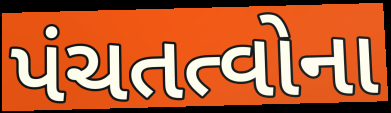
પંચતત્વોના